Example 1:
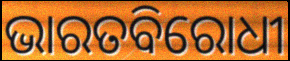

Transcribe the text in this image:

ଭାରତବିରୋଧୀ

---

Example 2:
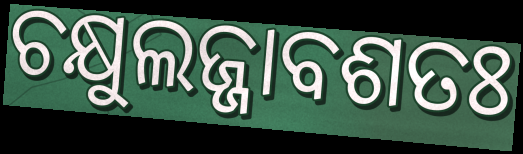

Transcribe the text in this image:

ଚକ୍ଷୁଲଜ୍ଜାବଶତଃ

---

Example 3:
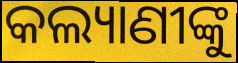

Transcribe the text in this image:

କଲ୍ୟାଣୀଙ୍କୁ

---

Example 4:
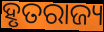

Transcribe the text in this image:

ହୃତରାଜ୍ୟ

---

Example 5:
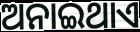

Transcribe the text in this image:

ଅନାଇଥାଏ